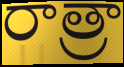
రాత్రా